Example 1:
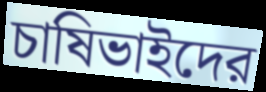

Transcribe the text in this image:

চাষিভাইদের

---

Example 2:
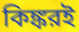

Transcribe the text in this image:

কিঙ্করই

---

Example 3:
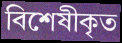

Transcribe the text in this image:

বিশেষীকৃত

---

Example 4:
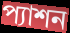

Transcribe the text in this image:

প্যাশন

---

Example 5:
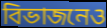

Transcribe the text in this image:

বিভাজনেও